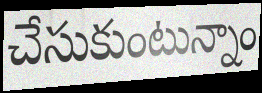
చేసుకుంటున్నాం